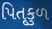
પિતૃકુળ